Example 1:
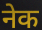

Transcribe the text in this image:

नेक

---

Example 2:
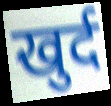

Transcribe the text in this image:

खुर्द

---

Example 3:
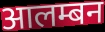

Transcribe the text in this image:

आलम्बन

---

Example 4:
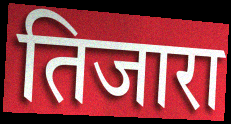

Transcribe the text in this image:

तिजारा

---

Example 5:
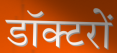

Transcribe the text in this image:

डॉक्टरों